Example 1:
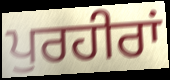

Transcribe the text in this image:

ਪੁਰਹੀਰਾਂ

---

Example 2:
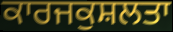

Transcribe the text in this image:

ਕਾਰਜਕੁਸ਼ਲਤਾ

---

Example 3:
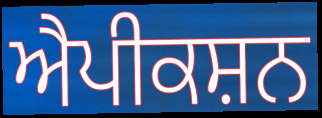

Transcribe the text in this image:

ਐਪੀਕਸ਼ਨ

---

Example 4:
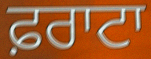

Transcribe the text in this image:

ਫ਼ਰਾਟਾ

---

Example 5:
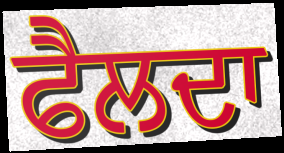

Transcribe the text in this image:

ਫੈਲਦਾ